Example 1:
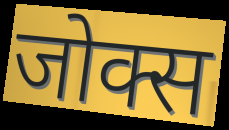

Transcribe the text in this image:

जोक्स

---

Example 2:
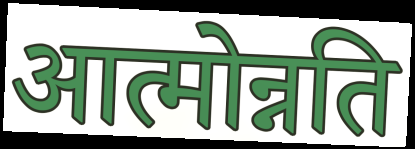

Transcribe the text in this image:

आत्मोन्नति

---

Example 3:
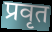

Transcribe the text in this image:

प्रवृत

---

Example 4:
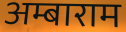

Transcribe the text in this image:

अम्बाराम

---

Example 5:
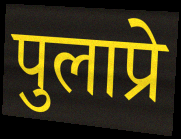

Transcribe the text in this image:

पुलाप्रे